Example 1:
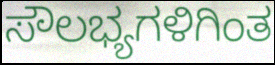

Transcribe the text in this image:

ಸೌಲಭ್ಯಗಳಿಗಿಂತ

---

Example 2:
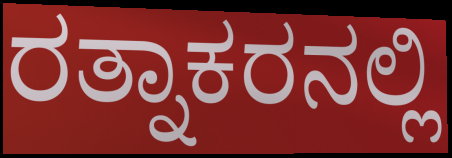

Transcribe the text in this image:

ರತ್ನಾಕರನಲ್ಲಿ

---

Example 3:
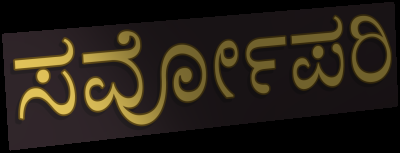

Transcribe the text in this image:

ಸರ್ವೋಪರಿ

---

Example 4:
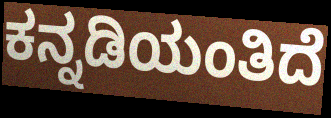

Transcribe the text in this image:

ಕನ್ನಡಿಯಂತಿದೆ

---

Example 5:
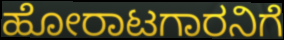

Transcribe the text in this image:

ಹೋರಾಟಗಾರನಿಗೆ